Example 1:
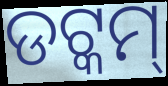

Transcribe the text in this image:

ଡଟ୍କମ୍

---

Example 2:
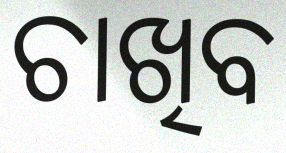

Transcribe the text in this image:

ଚାଖିବ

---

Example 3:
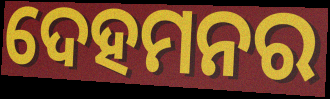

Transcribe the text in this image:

ଦେହମନର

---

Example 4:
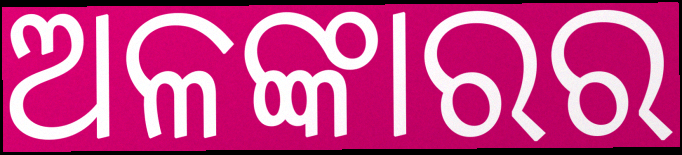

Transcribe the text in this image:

ଅଳଙ୍କାରର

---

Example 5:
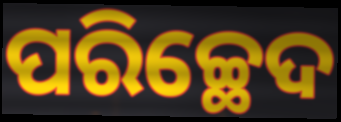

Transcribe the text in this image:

ପରିଚ୍ଛେଦ